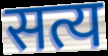
सत्य